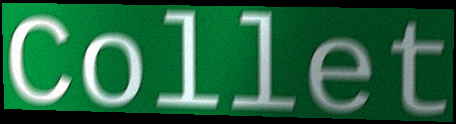
Collet